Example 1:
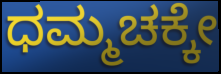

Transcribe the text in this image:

ಧಮ್ಮಚಕ್ಕೇ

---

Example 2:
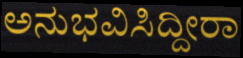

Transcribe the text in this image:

ಅನುಭವಿಸಿದ್ದೀರಾ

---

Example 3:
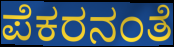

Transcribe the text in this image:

ಪೆಕರನಂತೆ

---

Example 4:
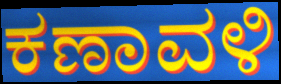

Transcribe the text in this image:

ಕಣಾವಳಿ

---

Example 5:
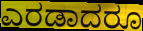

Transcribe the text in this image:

ಎರಡಾದರೂ